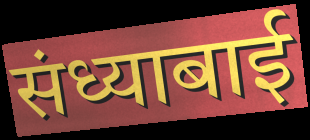
संध्याबाई